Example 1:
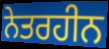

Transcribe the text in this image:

ਨੇਤਰਹੀਨ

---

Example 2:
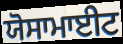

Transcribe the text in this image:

ਯੋਸਾਮਾਈਟ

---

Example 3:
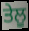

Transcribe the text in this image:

ਤੇਲੂ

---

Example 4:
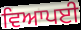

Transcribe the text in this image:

ਵਿਆਪਈ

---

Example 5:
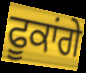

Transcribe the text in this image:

ਫੂਕਾਂਗੇ